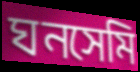
ঘনসেমি